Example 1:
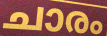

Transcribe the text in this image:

ചാരം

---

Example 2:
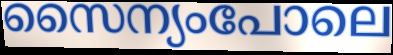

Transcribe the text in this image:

സൈന്യംപോലെ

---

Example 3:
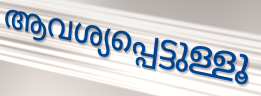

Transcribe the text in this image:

ആവശ്യപ്പെട്ടുള്ളൂ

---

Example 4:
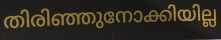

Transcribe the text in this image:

തിരിഞ്ഞുനോക്കിയില്ല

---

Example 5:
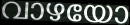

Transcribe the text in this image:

വാഴയോ